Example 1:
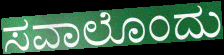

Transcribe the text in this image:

ಸವಾಲೊಂದು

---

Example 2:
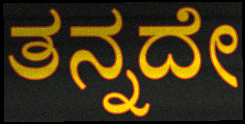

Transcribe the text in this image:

ತನ್ನದೇ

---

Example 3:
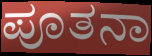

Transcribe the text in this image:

ಪೂತನಾ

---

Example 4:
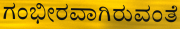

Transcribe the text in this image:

ಗಂಭೀರವಾಗಿರುವಂತೆ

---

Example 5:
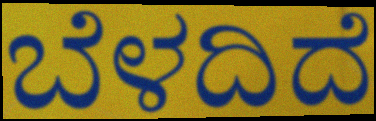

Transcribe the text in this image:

ಬೆಳದಿದೆ